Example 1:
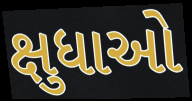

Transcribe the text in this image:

ક્ષુધાઓ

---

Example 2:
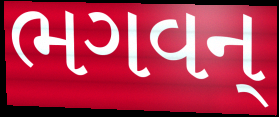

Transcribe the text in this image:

ભગવન્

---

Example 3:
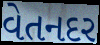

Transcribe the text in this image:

વેતનદર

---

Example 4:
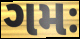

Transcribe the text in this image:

ગમઃ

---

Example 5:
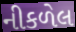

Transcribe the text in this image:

નીકળેલ